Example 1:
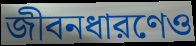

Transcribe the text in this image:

জীবনধারণেও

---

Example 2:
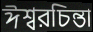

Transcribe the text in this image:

ঈশ্বরচিন্তা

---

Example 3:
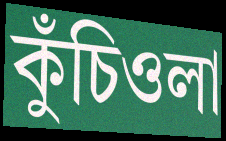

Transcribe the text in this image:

কুঁচিওলা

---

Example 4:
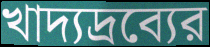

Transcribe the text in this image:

খাদ্যদ্রব্যের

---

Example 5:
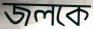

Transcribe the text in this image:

জলকে